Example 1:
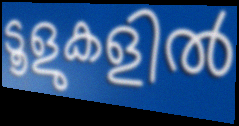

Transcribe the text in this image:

ടൂളുകളിൽ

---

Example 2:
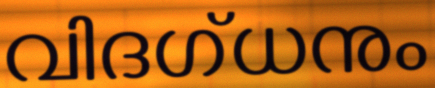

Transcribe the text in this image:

വിദഗ്ധനും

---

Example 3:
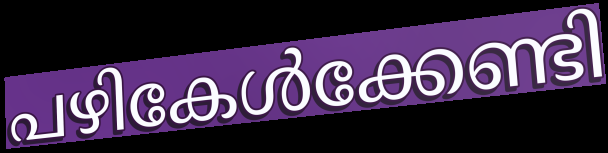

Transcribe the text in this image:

പഴികേൾക്കേണ്ടി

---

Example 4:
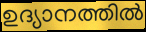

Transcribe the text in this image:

ഉദ്യാനത്തിൽ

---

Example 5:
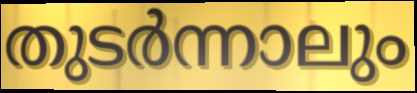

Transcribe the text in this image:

തുടർന്നാലും